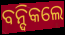
ବନ୍ଦିକଲେ